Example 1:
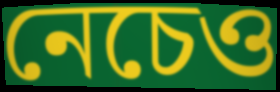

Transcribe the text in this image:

নেচেও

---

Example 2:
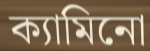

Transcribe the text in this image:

ক্যামিনো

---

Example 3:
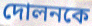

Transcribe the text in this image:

দোলনকে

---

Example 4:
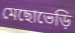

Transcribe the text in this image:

মেছোভেড়ি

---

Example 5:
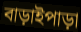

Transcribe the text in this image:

বাড়াইপাড়া